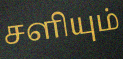
சளியும்